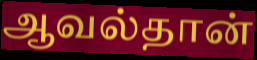
ஆவல்தான்